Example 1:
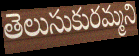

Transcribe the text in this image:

తెలుసుకురమ్మని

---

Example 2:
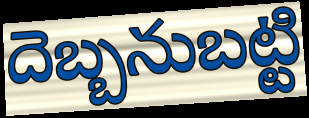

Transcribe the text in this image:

దెబ్బనుబట్టి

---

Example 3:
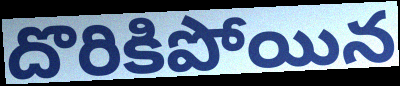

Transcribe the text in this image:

దొరికిపోయిన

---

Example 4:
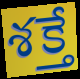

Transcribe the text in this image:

శక్తే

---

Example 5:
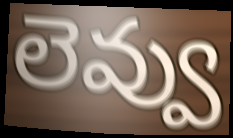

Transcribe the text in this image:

లెవ్వు